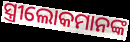
ସ୍ତ୍ରୀଲୋକମାନଙ୍କ